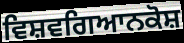
ਵਿਸ਼ਵਗਿਆਨਕੋਸ਼